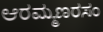
ಆರಮ್ಮಣರಸಂ